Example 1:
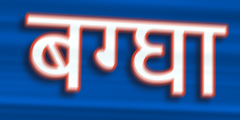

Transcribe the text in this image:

बग्घा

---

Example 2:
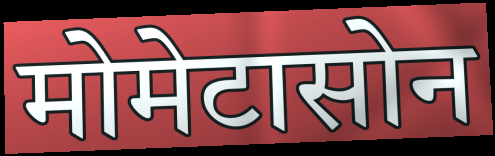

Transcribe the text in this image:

मोमेटासोन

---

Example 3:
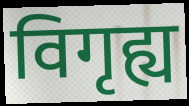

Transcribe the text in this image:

विगृह्य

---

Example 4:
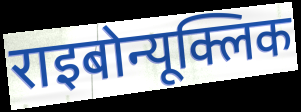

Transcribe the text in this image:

राइबोन्यूक्लिक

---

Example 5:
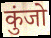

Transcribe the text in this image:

कुंजो